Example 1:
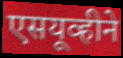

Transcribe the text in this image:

एसयूव्हीने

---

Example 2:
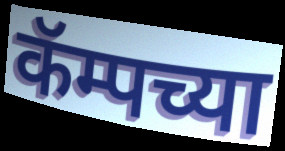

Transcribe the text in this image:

कॅम्पच्या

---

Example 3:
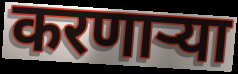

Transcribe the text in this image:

करणार्‍या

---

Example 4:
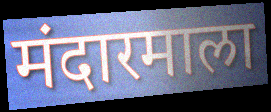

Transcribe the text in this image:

मंदारमाला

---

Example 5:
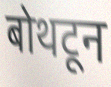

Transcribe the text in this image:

बोथटून